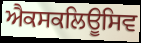
ਐਕਸਕਲਿਊਸਿਵ